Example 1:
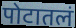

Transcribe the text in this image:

पोटातलं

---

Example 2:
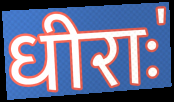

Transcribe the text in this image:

धीराः॑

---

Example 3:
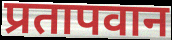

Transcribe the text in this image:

प्रतापवान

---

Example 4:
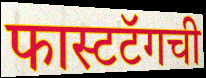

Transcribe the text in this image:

फास्टटॅगची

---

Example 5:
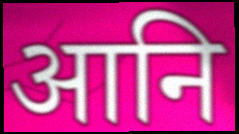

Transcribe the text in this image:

आनि